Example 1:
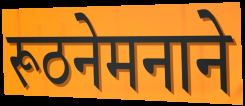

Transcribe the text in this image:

रूठनेमनाने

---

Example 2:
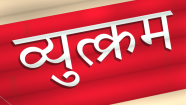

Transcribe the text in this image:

व्युत्क्रम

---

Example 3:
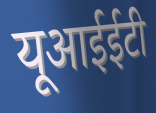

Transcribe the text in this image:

यूआईईटी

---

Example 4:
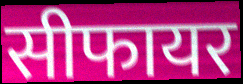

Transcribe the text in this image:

सीफायर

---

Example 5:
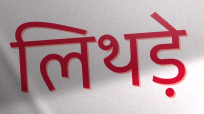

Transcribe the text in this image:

लिथड़े